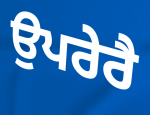
ਉਪਰੇਰੈ